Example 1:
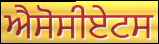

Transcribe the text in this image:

ਐਸੋਸੀਏਟਸ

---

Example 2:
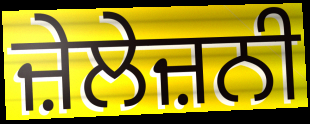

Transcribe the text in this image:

ਜ਼ੇਲੇਜ਼ਨੀ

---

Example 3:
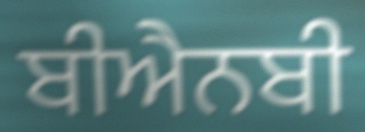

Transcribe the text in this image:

ਬੀਐਨਬੀ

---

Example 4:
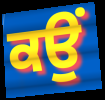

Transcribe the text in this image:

ਕਉਂ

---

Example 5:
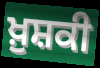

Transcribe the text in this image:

ਖ਼ੁਸ਼ਕੀ